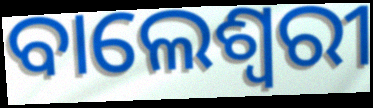
ବାଲେଶ୍ଵରୀ